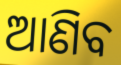
ଆଣିବ